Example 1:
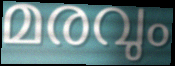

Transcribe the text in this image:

മരവും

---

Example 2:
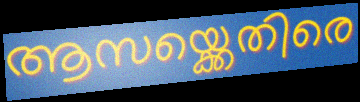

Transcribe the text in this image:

ആസയ്ക്കെതിരെ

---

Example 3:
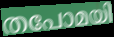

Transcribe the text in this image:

തപോമയി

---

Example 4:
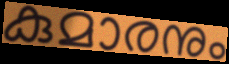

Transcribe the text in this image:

കുമാരനും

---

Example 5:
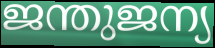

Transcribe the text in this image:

ജന്തുജന്യ